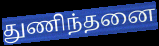
துணிந்தனை